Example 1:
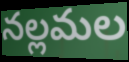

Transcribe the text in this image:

నల్లమల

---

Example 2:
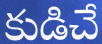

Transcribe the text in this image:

కుడిచే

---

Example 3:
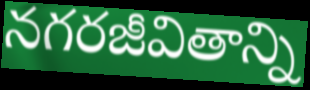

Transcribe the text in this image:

నగరజీవితాన్ని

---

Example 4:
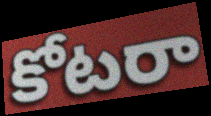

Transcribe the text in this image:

కోటరా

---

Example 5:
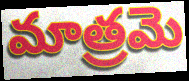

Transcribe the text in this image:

మాత్రమె